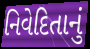
નિવેદિતાનું